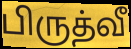
பிருத்வீ